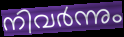
നിവർന്നും